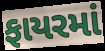
ફાયરમાં